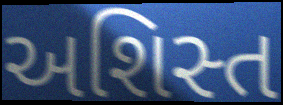
અશિસ્ત